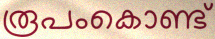
രൂപംകൊണ്ട്